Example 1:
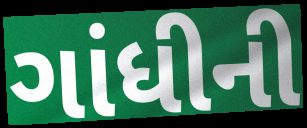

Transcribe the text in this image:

ગાંધીની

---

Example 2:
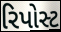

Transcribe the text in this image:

રિપોસ્ટ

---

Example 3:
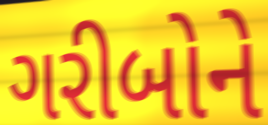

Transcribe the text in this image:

ગરીબોને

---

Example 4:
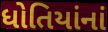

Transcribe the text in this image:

ધોતિયાંનાં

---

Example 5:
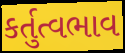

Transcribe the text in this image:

કર્તુત્વભાવ